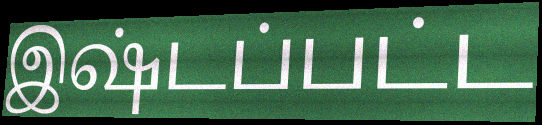
இஷ்டப்பட்ட